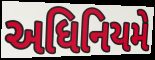
અધિનિયમે